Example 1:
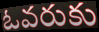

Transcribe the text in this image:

ఓవరుకు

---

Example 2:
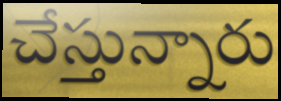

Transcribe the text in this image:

చేస్తున్నారు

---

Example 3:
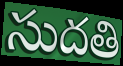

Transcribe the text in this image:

సుదతి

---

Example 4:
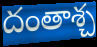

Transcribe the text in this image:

దంతాశ్చ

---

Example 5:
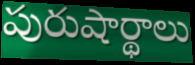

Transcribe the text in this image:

పురుషార్థాలు